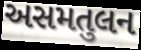
અસમતુલન